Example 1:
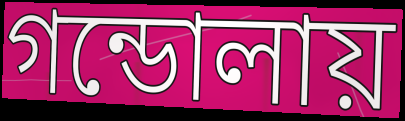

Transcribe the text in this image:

গন্ডোলায়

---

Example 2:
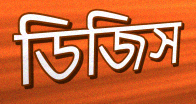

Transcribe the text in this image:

ডিজিস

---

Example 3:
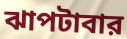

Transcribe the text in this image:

ঝাপটাবার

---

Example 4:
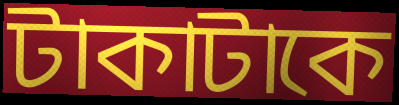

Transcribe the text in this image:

টাকাটাকে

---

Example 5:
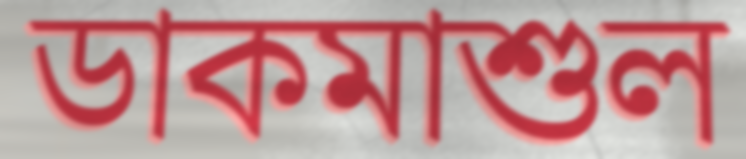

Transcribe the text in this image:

ডাকমাশুল